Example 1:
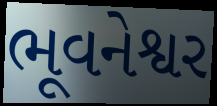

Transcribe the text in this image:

ભૂવનેશ્વર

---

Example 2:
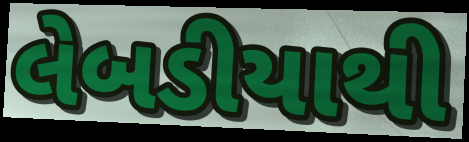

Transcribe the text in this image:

લેબડીયાથી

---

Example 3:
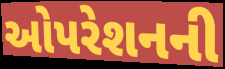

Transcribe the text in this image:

ઓપરેશનની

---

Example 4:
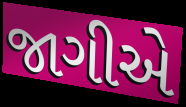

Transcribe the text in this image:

જાગીએ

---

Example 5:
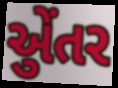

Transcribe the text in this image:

એુંતર